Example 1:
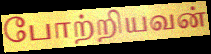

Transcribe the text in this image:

போற்றியவன்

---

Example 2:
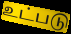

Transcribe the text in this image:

உட்படு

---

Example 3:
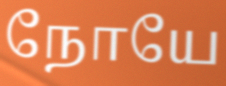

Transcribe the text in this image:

நோயே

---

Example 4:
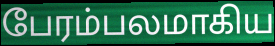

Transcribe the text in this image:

பேரம்பலமாகிய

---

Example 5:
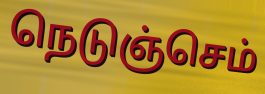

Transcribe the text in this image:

நெடுஞ்செம்